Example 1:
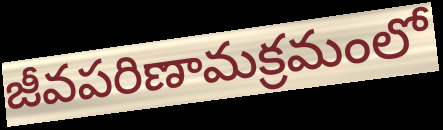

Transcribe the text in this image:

జీవపరిణామక్రమంలో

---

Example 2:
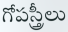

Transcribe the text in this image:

గోపస్త్రీలు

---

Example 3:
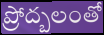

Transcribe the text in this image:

ప్రోద్బలంతో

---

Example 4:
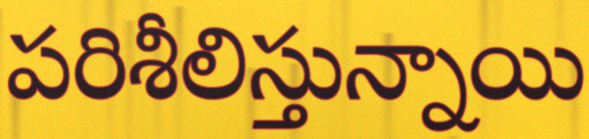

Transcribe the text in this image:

పరిశీలిస్తున్నాయి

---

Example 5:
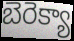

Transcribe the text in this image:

బెరెక్యా